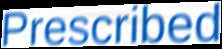
Prescribed